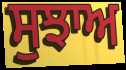
ਸੁਝਾਅ